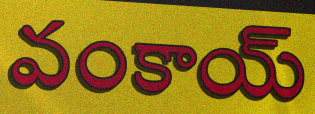
వంకాయ్